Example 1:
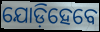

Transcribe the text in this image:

ଯୋଡ଼ିହେବେ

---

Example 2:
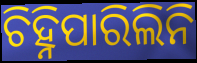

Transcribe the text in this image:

ଚିହ୍ନିପାରିଲିନି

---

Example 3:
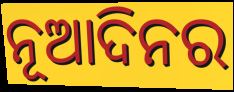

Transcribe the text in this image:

ନୂଆଦିନର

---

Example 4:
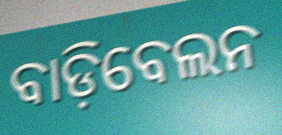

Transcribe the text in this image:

ବାଡ଼ିବେଲନ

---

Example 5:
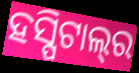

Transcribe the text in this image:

ହସ୍ପିଟାଲ୍‌ର